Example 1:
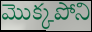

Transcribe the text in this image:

మొక్కపోని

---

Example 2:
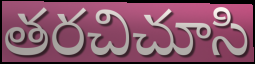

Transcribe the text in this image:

తరచిచూసి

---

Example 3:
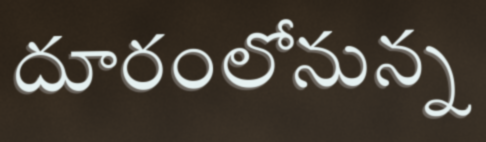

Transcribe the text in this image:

దూరంలోనున్న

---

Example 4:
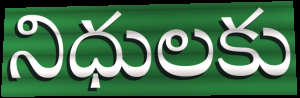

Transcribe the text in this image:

నిధులకు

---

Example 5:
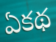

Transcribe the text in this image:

ఏకథ